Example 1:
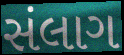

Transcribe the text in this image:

સંલાગ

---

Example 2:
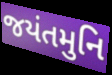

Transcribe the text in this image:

જયંતમુનિ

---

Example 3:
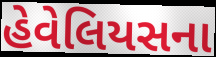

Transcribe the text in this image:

હેવેલિયસના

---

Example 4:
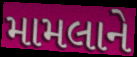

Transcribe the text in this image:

મામલાને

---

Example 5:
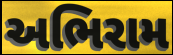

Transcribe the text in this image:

અભિરામ